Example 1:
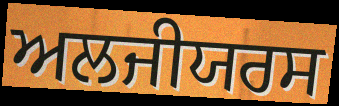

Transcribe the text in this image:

ਅਲਜੀਯਰਸ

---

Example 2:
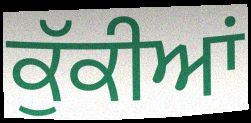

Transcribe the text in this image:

ਕੁੱਕੀਆਂ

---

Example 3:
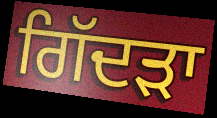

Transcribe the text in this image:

ਗਿੱਦੜਾ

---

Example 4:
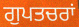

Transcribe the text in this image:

ਗੁਪਤਚਰਾਂ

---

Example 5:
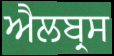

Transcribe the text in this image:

ਐਲਬ੍ਰਸ